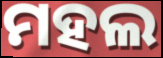
ମହଲ